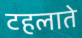
टहलाते